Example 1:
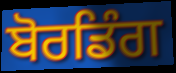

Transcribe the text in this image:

ਬੋਰਡਿੰਗ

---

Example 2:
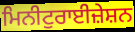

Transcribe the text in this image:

ਮਿਨੀਟੁਰਾਈਜ਼ੇਸ਼ਨ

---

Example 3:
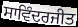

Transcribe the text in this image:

ਸਾਵਿੰਦਰਜੀਤ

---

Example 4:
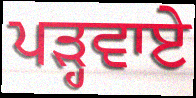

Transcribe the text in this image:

ਪੜ੍ਹਵਾਏ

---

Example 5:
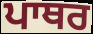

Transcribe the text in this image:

ਪਾਥਰ